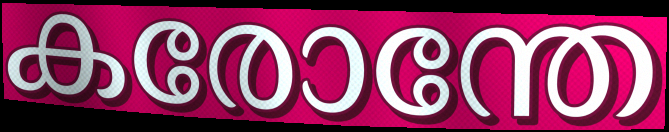
കരോന്തേ